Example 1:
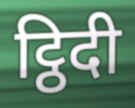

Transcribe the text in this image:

ट्ठिदी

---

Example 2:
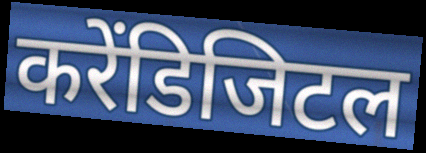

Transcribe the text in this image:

करेंडिजिटल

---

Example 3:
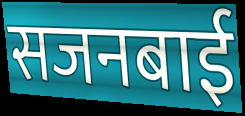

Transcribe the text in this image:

सजनबाई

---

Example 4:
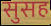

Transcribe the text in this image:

सुसह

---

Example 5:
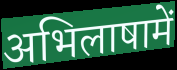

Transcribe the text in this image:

अभिलाषामें